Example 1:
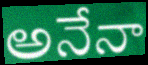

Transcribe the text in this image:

అనేనా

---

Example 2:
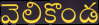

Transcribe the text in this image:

వెలికొండ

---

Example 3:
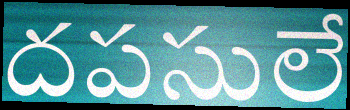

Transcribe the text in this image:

దపసులే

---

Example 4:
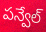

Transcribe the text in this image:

పన్వేల్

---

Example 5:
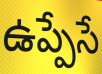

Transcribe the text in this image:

ఉప్పేసే